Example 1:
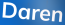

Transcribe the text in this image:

Daren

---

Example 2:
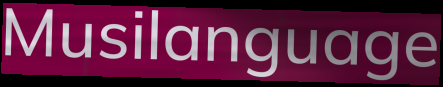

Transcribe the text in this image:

Musilanguage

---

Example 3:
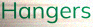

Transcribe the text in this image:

Hangers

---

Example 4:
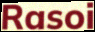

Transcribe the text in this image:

Rasoi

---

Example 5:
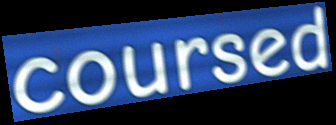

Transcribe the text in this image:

coursed